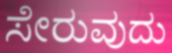
ಸೇರುವುದು